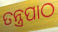
ତନ୍ତ୍ରପାଠ